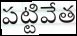
పట్టివేత